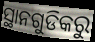
ସ୍ଥାନଗୁଡିକରୁ